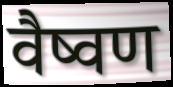
वैष्वण